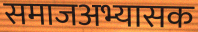
समाजअभ्यासक